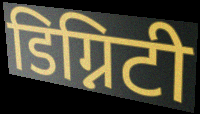
डिग्निटी